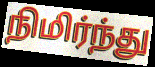
நிமிர்ந்து